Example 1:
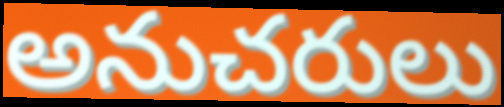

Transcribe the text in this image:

అనుచరులు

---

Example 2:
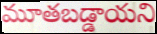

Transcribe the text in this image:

మూతబడ్డాయని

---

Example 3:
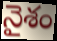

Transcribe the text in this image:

నైశం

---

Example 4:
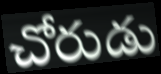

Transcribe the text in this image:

చోరుడు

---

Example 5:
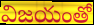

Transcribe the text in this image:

విజయంతో